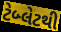
ટેબ્લેટથી